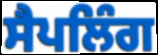
ਸੈਪਲਿੰਗ